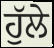
ਹੁੱਲੇ